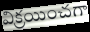
విక్రయించగా